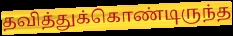
தவித்துக்கொண்டிருந்த